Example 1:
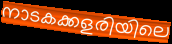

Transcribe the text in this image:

നാടകക്കളരിയിലെ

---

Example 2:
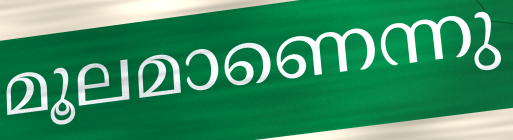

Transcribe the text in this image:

മൂലമാണെന്നു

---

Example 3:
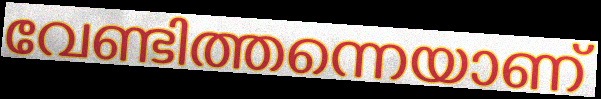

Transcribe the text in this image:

വേണ്ടിത്തന്നെയാണ്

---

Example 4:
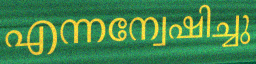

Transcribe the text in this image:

എന്നന്വേഷിച്ചു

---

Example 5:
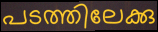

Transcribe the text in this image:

പടത്തിലേക്കു